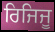
ਰਿਜਿਜੂ